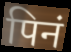
पिनं